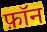
फ़ॉन